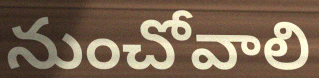
నుంచోవాలి